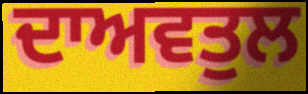
ਦਾਅਵਤੁਲ